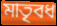
মাতৃবধ